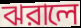
ঝরালে